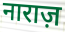
नाराज़